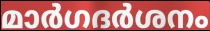
മാർഗദർശനം